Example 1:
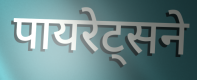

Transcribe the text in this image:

पायरेट्सने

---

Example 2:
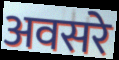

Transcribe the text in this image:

अवसरे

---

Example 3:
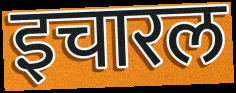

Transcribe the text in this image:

इचारल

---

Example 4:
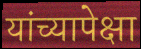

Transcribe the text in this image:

यांच्यापेक्षा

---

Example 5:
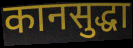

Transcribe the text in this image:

कानसुद्धा